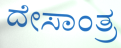
ದೇಸಾಂತ್ರ